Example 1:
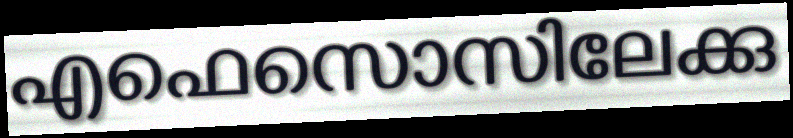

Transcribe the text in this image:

എഫെസൊസിലേക്കു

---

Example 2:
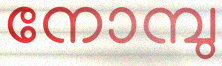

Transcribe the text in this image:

നോമ്പു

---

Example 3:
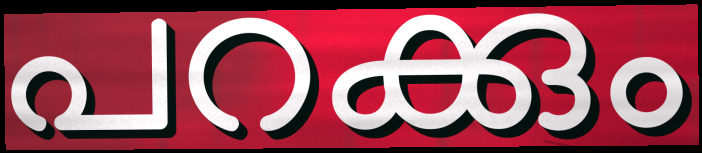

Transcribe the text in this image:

പറക്കും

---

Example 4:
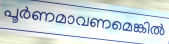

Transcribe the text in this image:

പൂർണമാവണമെങ്കിൽ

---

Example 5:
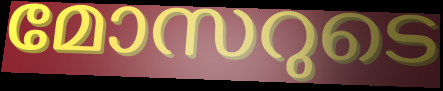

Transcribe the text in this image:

മോസറുടെ